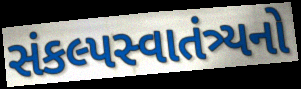
સંકલ્પસ્વાતંત્ર્યનો